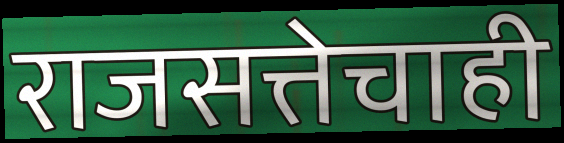
राजसत्तेचाही